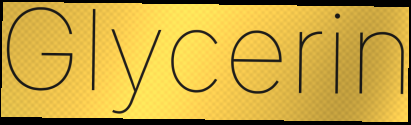
Glycerin